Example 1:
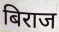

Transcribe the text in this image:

बिराज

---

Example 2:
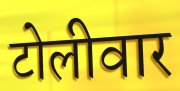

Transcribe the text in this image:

टोलीवार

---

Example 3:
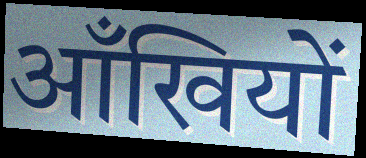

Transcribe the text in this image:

आँखियों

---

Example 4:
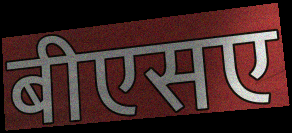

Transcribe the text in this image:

बीएसए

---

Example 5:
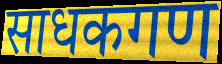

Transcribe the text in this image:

साधकगण